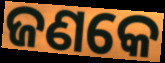
ଜଣକେ